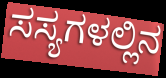
ಸಸ್ಯಗಳಲ್ಲಿನ